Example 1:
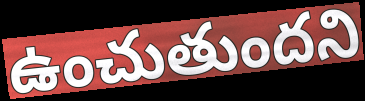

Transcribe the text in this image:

ఉంచుతుందని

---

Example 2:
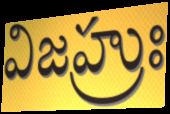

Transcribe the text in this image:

విజహ్రుః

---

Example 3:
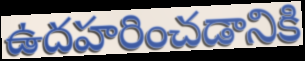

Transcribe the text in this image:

ఉదహరించడానికి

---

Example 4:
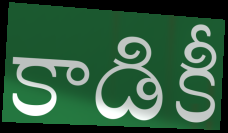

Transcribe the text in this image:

కాడికీ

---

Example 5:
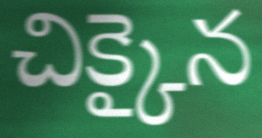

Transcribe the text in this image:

చిక్కైన